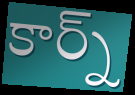
కార్న్